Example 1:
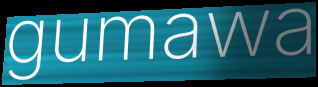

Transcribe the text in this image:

gumawa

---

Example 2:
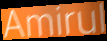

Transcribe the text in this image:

Amirul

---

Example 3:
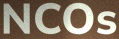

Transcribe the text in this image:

NCOs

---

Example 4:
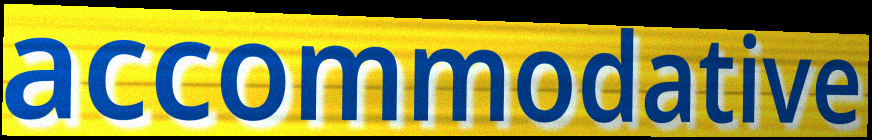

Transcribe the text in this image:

accommodative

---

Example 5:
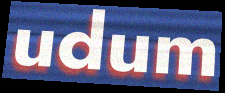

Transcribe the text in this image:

udum